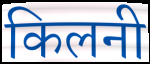
किलनी